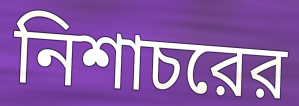
নিশাচরের